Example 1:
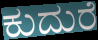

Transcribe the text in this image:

ಕುದುರೆ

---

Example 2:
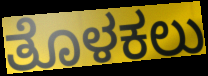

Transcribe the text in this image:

ತೊಳಕಲು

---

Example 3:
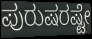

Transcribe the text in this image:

ಪುರುಷರಷ್ಟೇ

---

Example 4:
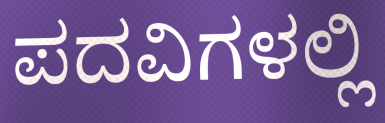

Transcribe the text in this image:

ಪದವಿಗಳಲ್ಲಿ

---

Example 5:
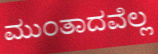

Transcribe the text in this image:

ಮುಂತಾದವೆಲ್ಲ